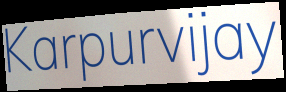
Karpurvijay